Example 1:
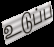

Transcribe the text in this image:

உடுப்ப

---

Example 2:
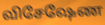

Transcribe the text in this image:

விசேஷேண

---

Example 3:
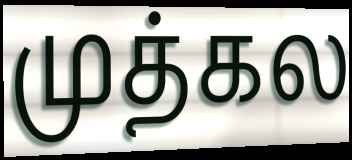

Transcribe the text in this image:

முத்கல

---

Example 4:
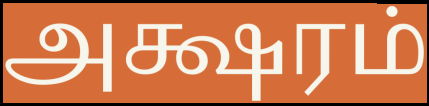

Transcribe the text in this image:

அக்ஷரம்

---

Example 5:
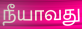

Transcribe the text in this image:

நீயாவது